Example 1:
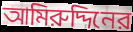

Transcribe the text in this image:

আমিরুদ্দিনের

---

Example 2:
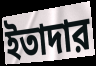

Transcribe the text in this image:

ইতাদার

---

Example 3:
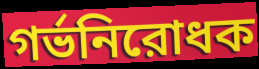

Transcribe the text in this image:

গর্ভনিরোধক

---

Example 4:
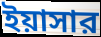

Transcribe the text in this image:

ইয়াসার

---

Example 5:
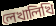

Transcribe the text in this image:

লেখালিখি